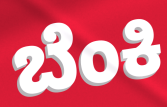
ಬೆಂಕಿ